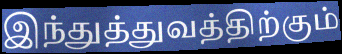
இந்துத்துவத்திற்கும்